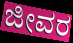
ಜೀವರ